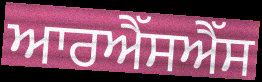
ਆਰਐੱਸਐੱਸ